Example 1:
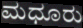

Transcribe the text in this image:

ಮಧೂರು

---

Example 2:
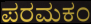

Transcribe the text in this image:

ಪರಮಕಂ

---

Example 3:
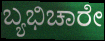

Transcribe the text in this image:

ಬ್ಯಭಿಚಾರೇ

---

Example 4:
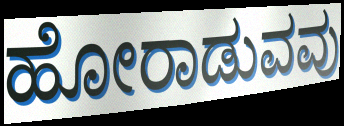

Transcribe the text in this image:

ಹೋರಾಡುವವು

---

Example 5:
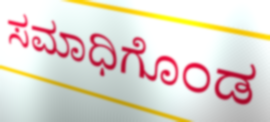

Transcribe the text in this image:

ಸಮಾಧಿಗೊಂಡ